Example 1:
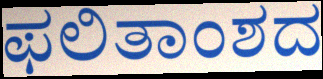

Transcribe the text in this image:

ಫಲಿತಾಂಶದ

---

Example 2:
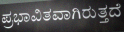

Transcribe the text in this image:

ಪ್ರಭಾವಿತವಾಗಿರುತ್ತದೆ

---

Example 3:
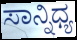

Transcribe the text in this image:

ಸಾನ್ನಿಧ್ಯ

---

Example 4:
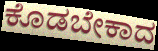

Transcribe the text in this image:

ಕೊಡಬೇಕಾದ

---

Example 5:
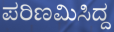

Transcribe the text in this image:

ಪರಿಣಮಿಸಿದ್ದ